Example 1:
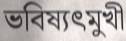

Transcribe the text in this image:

ভবিষ্যৎমুখী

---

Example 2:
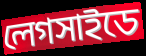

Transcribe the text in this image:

লেগসাইডে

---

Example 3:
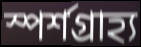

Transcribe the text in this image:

স্পর্শগ্রাহ্য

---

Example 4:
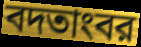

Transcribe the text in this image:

বদতাংবর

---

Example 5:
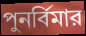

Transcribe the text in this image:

পুনর্বিমার